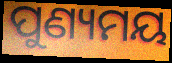
ପୁଣ୍ୟମୟ